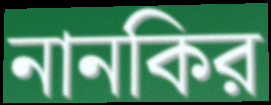
নানকির